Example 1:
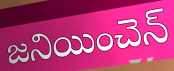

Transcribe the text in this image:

జనియించెన్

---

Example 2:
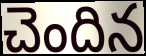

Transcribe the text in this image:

చెందిన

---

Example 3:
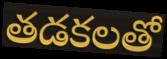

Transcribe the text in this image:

తడకలతో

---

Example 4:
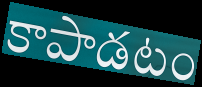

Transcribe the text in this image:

కాపాడటం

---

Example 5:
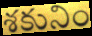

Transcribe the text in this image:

శకునిం